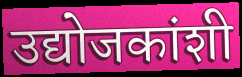
उद्योजकांशी